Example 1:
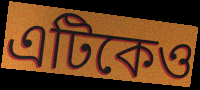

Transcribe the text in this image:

এটিকেও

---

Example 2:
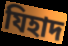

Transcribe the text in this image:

যিহাদ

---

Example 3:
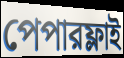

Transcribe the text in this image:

পেপারফ্লাই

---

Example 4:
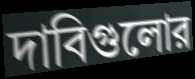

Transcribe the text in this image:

দাবিগুলোর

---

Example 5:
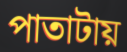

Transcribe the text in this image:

পাতাটায়